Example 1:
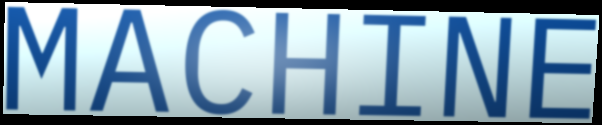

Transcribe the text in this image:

MACHINE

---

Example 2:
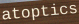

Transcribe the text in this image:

atoptics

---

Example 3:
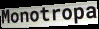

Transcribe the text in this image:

Monotropa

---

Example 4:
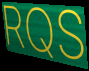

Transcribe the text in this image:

RQS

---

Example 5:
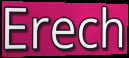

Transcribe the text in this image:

Erech